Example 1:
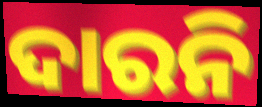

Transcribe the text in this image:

ଦାରନି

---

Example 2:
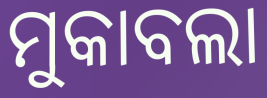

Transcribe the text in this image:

ମୁକାବଲା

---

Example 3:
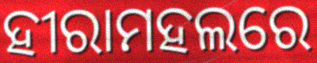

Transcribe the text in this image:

ହୀରାମହଲରେ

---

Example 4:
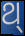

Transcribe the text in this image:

ଥ୍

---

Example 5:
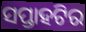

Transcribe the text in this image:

ସପ୍ତାହଟିର